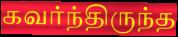
கவர்ந்திருந்த